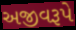
અજીવરૂપે